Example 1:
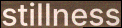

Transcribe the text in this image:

stillness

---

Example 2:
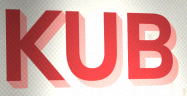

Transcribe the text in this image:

KUB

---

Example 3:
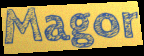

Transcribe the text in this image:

Magor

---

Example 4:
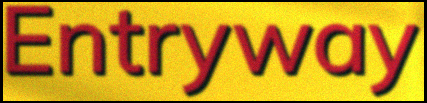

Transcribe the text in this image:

Entryway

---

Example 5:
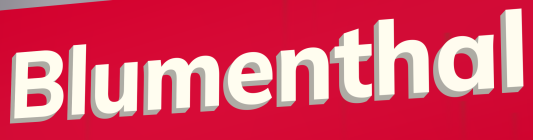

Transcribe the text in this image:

Blumenthal